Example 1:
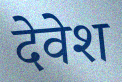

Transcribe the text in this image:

देवेश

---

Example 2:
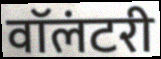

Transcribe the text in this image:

वॉलंटरी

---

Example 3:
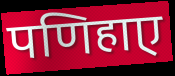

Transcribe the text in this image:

पणिहाए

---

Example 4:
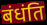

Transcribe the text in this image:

बंधंति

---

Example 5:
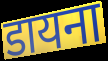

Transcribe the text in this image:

डायना